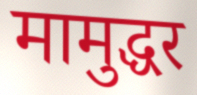
मामुद्धर